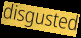
disgusted